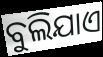
ବୁଲିଯାଏ